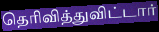
தெரிவித்துவிட்டார்